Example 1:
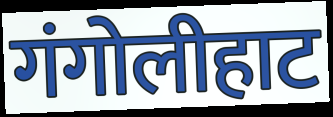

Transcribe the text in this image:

गंगोलीहाट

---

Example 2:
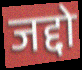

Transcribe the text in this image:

जद्दो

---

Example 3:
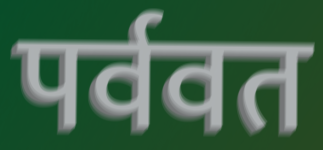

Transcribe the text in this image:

पर्ववत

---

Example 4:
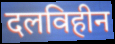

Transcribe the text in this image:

दलविहीन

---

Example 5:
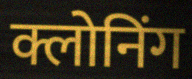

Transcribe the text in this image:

क्लोनिंग